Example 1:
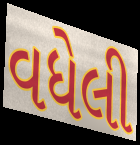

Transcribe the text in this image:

વધેલી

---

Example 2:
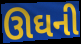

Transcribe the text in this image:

ઊઘની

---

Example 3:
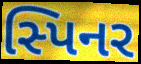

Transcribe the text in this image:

સ્પિનર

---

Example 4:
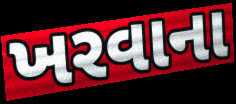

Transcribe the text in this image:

ખરવાના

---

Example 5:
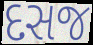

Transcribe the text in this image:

દસજ